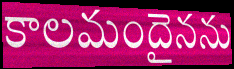
కాలమందైనను